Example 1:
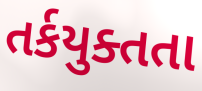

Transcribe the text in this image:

તર્કયુક્તતા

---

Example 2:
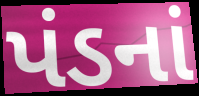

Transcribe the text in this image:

પંડનાં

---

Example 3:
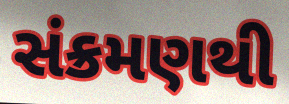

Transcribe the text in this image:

સંક્રમણથી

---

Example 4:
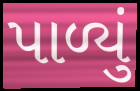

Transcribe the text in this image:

પાળ્યું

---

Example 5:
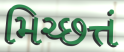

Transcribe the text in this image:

મિચ્છત્તં